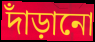
দাঁড়ানো